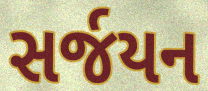
સર્જયન